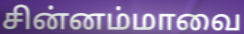
சின்னம்மாவை